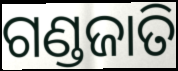
ଗଣ୍ଡଜାତି